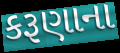
કરૂણાના